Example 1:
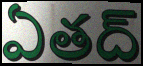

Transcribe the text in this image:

ఏతద్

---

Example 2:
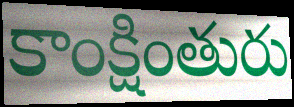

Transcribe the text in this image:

కాంక్షింతురు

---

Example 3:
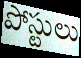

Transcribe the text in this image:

పోస్టులు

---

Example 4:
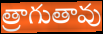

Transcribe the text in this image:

త్రాగుతావు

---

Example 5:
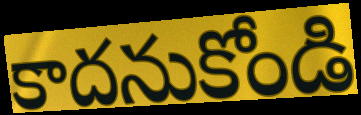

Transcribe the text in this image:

కాదనుకోండి